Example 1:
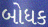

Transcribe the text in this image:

બોધક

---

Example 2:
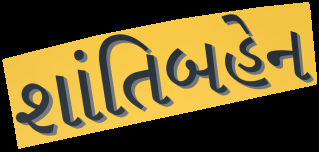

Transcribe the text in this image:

શાંતિબહેન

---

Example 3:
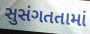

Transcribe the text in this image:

સુસંગતતામાં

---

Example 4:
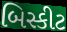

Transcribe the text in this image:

બિસ્કીટ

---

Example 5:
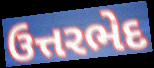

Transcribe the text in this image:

ઉત્તરભેદ